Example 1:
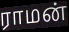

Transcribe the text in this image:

ராமன்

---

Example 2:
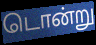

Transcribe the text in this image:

டொன்று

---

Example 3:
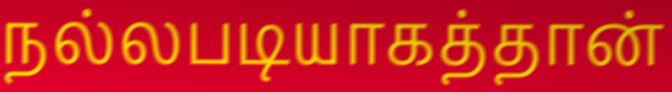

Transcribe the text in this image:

நல்லபடியாகத்தான்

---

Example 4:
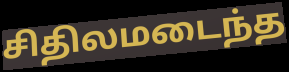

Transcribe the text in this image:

சிதிலமடைந்த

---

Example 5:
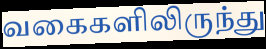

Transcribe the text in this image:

வகைகளிலிருந்து